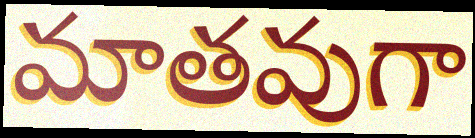
మాతవుగా